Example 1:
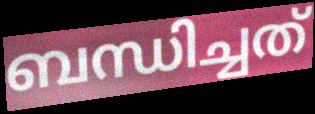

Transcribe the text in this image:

ബന്ധിച്ചത്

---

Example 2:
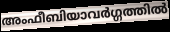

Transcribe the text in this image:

അംഫീബിയാവർഗ്ഗത്തിൽ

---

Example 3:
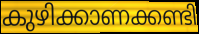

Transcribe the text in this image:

കുഴിക്കാണക്കണ്ടി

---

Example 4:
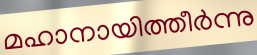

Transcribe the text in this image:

മഹാനായിത്തീർന്നു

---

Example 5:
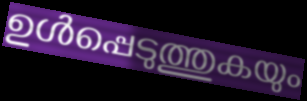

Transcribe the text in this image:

ഉൾപ്പെടുത്തുകയും